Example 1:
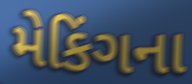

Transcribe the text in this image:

મેકિંગના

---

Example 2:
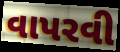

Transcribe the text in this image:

વાપરવી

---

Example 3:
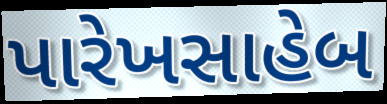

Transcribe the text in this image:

પારેખસાહેબ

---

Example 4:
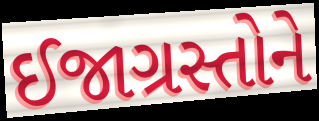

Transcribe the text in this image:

ઈજાગ્રસ્તોને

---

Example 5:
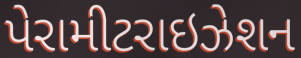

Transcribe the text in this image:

પેરામીટરાઇઝેશન